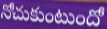
నోచుకుంటుందో